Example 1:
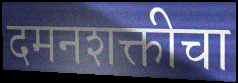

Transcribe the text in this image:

दमनशक्तीचा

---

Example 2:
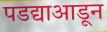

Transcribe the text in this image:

पडद्याआडून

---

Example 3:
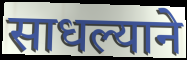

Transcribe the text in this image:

साधल्याने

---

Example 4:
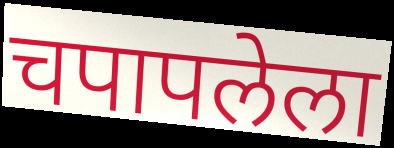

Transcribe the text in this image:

चपापलेला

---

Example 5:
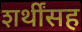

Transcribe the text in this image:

शर्थींसह